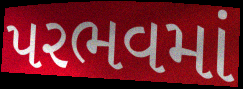
પરભવમાં